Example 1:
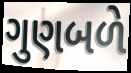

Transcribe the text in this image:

ગુણબળે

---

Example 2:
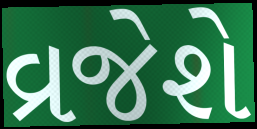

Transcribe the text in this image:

વ્રજેશે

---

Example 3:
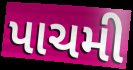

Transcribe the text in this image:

પાચમી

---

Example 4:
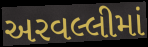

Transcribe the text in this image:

અરવલ્લીમાં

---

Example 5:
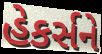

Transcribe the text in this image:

હેકર્સને